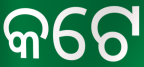
କଟେ